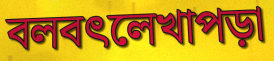
বলবৎলেখাপড়া